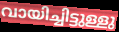
വായിച്ചിട്ടുള്ളു